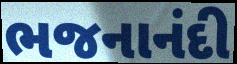
ભજનાનંદી